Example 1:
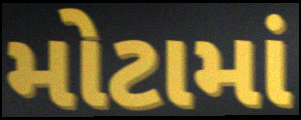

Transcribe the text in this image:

મોટામાં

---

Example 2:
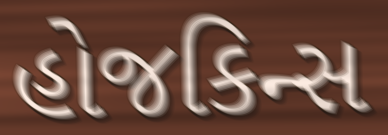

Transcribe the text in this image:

હોજકિન્સ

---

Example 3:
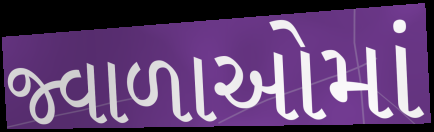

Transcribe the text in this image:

જ્વાળાઓમાં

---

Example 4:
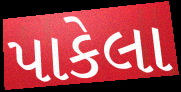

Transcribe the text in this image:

પાકેલા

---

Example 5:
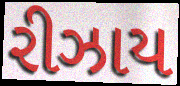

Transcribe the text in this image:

રીઝાય